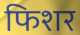
फिशर